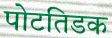
पोटतिडक